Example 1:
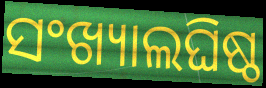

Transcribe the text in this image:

ସଂଖ୍ୟାଲଘିଷ୍ଠ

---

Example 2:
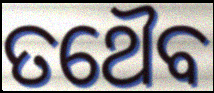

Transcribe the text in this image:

ତଥୈବ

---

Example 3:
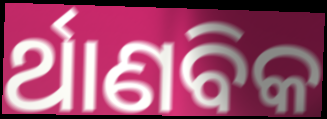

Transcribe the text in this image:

ର୍ଥାଣବିକ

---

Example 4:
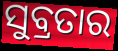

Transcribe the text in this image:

ସୁବ୍ରତାର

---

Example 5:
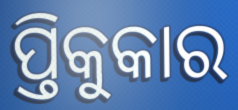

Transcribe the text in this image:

ପ୍ତିକୁକାର